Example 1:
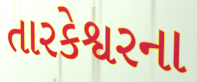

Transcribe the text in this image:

તારકેશ્વરના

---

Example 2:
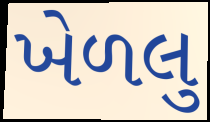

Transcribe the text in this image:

ખેળલુ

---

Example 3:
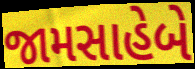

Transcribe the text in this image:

જામસાહેબે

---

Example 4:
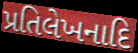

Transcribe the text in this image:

પ્રતિલેખનાદિ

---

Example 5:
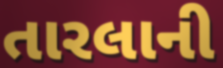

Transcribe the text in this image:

તારલાની